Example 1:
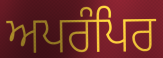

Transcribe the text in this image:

ਅਪਰੰਪਿਰ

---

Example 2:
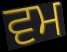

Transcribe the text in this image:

ਵਮ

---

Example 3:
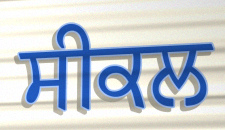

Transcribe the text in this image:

ਸੀਕਲ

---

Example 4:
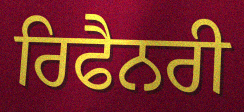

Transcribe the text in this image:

ਰਿਫੈਨਰੀ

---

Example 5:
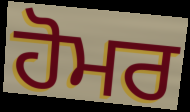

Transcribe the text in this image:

ਹੋਮਰ